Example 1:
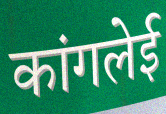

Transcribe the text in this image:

कांगलेई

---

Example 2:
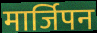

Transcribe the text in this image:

मार्जिपन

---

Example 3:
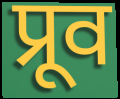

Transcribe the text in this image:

प्रूव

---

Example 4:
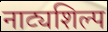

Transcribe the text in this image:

नाट्यशिल्प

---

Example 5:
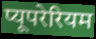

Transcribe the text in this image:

प्यूपरेरियम